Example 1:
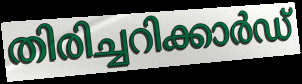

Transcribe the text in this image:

തിരിച്ചറിക്കാർഡ്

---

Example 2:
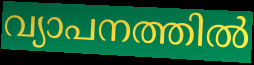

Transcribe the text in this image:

വ്യാപനത്തിൽ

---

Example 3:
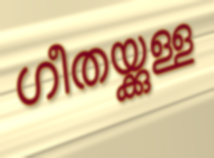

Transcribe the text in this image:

ഗീതയ്ക്കുള്ള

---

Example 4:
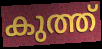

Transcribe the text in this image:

കുത്ത്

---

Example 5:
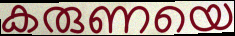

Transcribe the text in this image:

കരുണയെ